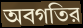
অবগতির